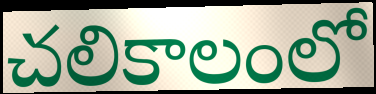
చలికాలంలో